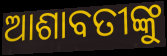
ଆଶାବତୀଙ୍କୁ